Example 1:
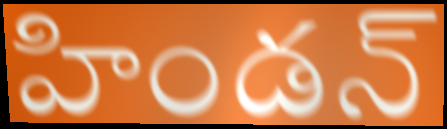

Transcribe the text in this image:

హిండన్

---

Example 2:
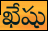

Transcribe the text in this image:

ఖేషు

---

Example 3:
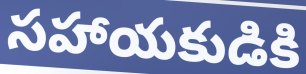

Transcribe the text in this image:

సహాయకుడికి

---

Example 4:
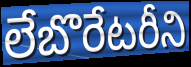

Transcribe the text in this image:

లేబొరేటరీని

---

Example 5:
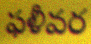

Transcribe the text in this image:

ఫళీవర